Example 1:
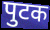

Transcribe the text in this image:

पुटक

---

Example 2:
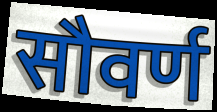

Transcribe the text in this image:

सौवर्ण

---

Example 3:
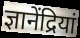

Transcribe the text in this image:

ज्ञानेंद्रियां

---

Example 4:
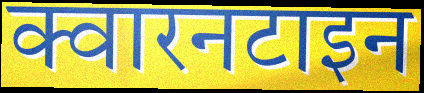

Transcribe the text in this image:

क्वारनटाइन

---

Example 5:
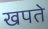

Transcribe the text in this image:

खपते